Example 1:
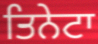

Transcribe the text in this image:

ਤਿਨੇਟਾ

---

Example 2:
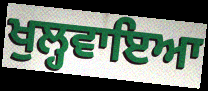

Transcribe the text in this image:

ਖੁਲ੍ਹਵਾਇਆ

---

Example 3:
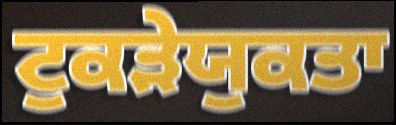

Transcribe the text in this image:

ਟੁਕੜੇਯੁਕਤਾ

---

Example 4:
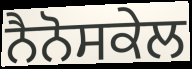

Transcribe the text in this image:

ਨੈਨੋਸਕੇਲ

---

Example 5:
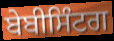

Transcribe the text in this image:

ਬੇਬੀਸਿੰਟਗ